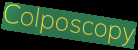
Colposcopy